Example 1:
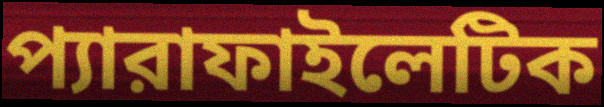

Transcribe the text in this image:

প্যারাফাইলেটিক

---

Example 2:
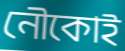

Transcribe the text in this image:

নৌকোই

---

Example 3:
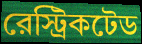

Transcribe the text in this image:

রেস্ট্রিকটেড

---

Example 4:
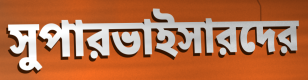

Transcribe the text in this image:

সুপারভাইসারদের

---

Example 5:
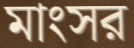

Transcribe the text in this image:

মাংসর